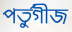
পৰ্তুগীজ